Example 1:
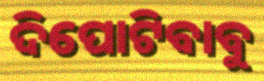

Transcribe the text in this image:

ଦିପୋଟିବାବୁ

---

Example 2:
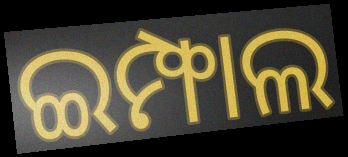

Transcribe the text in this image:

ଇମ୍ଫାଲ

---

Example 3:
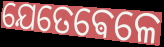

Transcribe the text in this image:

ଯେତେଵେଳେ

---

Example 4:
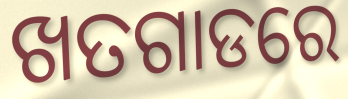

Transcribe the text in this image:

ଖତଗାଡରେ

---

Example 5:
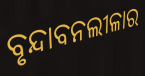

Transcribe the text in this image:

ବୃନ୍ଦାବନଲୀଳାର